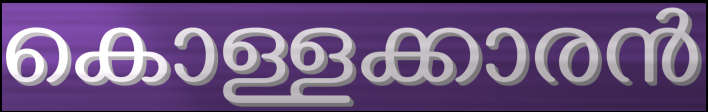
കൊള്ളക്കാരൻ